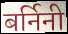
बर्निनी